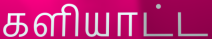
களியாட்ட